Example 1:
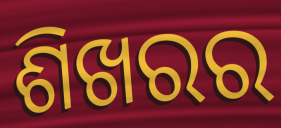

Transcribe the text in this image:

ଶିଖରର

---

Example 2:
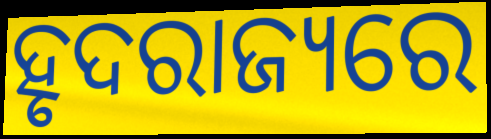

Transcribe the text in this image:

ହୃଦରାଜ୍ୟରେ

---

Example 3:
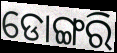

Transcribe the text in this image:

ଡୋଙ୍ଗରି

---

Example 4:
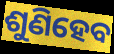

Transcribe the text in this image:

ଶୁଣିହେବ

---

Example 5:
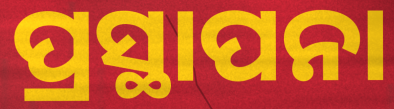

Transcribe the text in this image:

ପ୍ରସ୍ଥାପନା